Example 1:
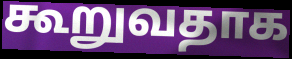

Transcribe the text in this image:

கூறுவதாக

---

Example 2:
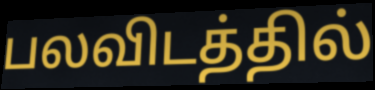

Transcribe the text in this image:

பலவிடத்தில்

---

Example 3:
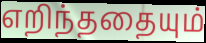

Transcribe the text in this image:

எறிந்ததையும்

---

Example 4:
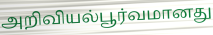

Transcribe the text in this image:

அறிவியல்பூர்வமானது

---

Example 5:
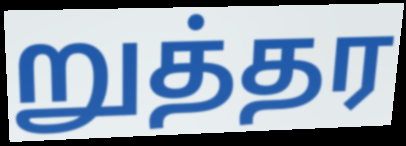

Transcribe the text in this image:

றுத்தர